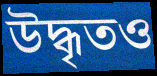
উদ্ধৃতও